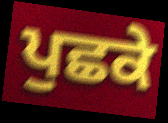
ਪੁਛਕੇ